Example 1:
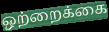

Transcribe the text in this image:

ஒற்றைக்கை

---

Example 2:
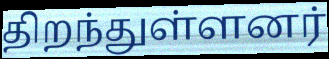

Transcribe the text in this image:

திறந்துள்ளனர்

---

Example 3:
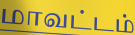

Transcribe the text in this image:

மாவட்டம்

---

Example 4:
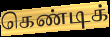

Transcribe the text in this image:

கெண்டிக்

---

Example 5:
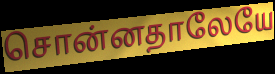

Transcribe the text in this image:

சொன்னதாலேயே